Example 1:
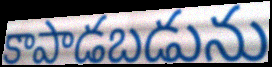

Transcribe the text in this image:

కాపాడబడును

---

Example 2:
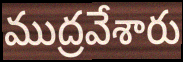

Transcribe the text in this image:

ముద్రవేశారు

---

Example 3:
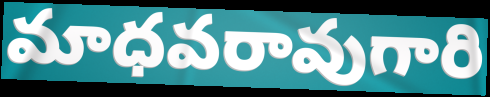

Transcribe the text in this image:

మాధవరావుగారి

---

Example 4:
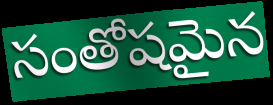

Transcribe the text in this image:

సంతోషమైన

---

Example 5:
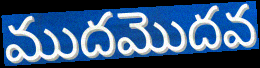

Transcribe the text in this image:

ముదమొదవ